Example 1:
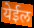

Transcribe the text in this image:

येईल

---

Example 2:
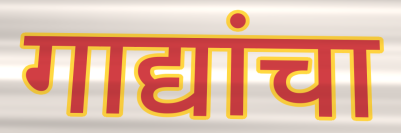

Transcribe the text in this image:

गाद्यांचा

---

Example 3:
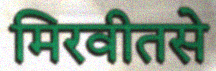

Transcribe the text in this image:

मिरवीतसे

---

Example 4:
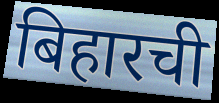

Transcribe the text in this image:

बिहारची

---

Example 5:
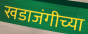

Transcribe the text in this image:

खडाजंगीच्या